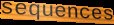
sequences